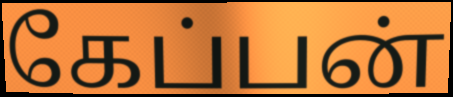
கேப்பன்